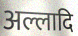
अल्लादि